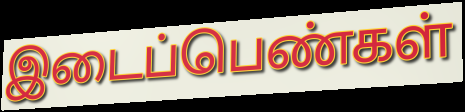
இடைப்பெண்கள்